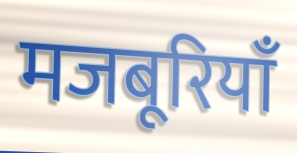
मजबूरियाँ